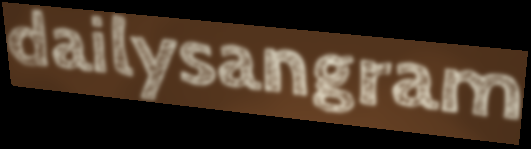
dailysangram